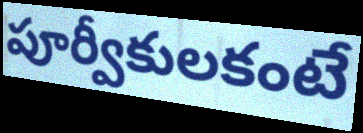
పూర్వీకులకంటే